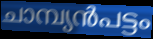
ചാമ്പ്യൻപട്ടം